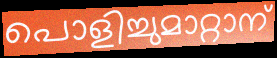
പൊളിച്ചുമാറ്റാന്